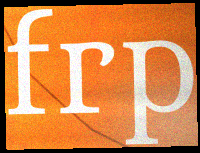
frp